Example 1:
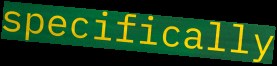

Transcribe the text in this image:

specifically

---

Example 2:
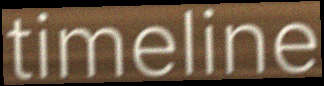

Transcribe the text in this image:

timeline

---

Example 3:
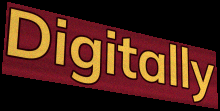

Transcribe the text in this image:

Digitally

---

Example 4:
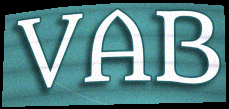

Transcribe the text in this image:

VAB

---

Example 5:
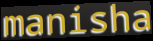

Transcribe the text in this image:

manisha